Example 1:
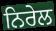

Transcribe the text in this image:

ਨਿਰੇਲ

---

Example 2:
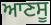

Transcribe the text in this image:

ਆਣਸੂ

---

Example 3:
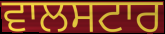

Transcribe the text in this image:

ਵਾਲਸਟਾਰ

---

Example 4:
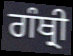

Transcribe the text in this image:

ਗੰਥ੍ਰੀ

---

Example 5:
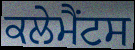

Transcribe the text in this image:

ਕਲੇਮੈਂਟਸ